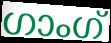
ഗാംഗ്